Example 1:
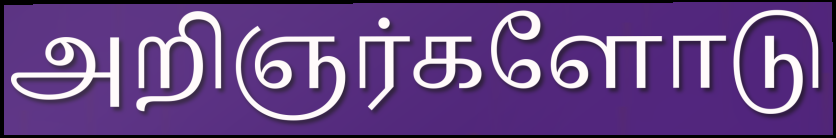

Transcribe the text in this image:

அறிஞர்களோடு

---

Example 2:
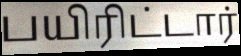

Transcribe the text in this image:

பயிரிட்டார்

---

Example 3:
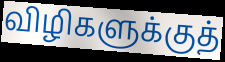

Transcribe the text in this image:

விழிகளுக்குத்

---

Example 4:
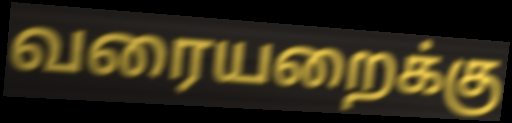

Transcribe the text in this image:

வரையறைக்கு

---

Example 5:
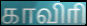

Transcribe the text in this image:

காவிரி